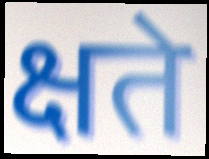
क्षते